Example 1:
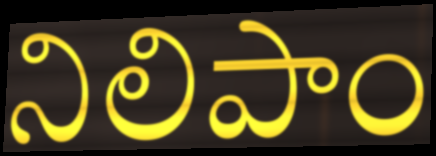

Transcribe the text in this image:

నిలిపాం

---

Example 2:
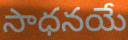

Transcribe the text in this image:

సాధనయే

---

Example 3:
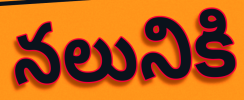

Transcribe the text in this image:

నలునికి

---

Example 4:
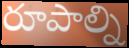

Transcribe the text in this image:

రూపాల్ని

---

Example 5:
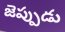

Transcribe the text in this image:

జెప్పుడు